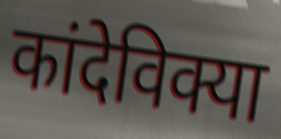
कांदेविक्या